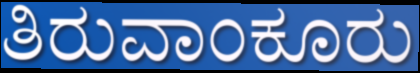
ತಿರುವಾಂಕೂರು